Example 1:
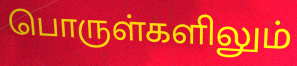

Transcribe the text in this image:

பொருள்களிலும்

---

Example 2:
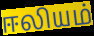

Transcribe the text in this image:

ஈலியம்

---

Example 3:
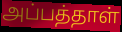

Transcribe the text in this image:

அப்பத்தாள்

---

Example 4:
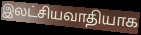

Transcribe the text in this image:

இலட்சியவாதியாக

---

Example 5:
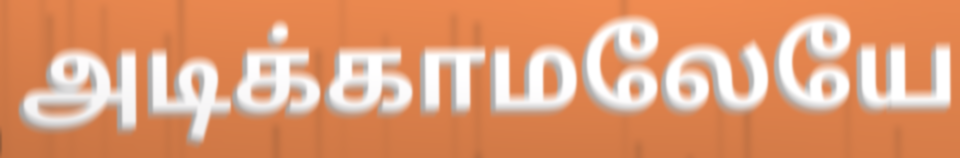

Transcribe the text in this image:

அடிக்காமலேயே